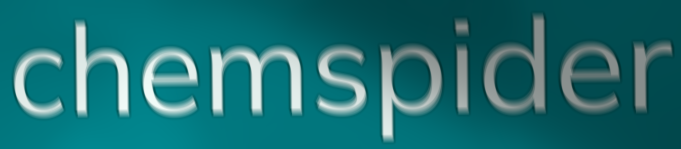
chemspider